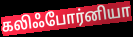
கலிஃபோர்னியா